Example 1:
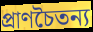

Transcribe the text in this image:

প্রাণচৈতন্য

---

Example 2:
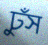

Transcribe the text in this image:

ঢুঁস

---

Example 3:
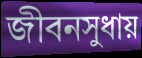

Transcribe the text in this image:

জীবনসুধায়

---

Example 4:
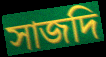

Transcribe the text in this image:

সাজদি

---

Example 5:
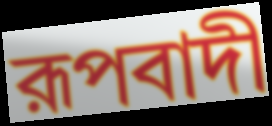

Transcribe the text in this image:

রূপবাদী